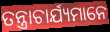
ତନ୍ତ୍ରାଚାର୍ଯ୍ୟମାନେ